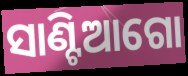
ସାଣ୍ଟିଆଗୋ